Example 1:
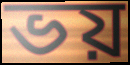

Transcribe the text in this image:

ভয়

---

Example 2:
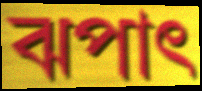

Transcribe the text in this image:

ঝপাৎ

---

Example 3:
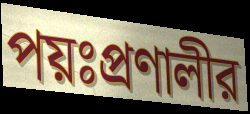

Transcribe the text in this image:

পয়ঃপ্রণালীর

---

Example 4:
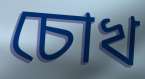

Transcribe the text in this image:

চোখ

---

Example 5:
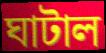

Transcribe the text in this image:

ঘাটাল